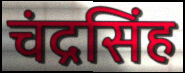
चंद्रसिंह